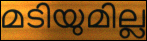
മടിയുമില്ല